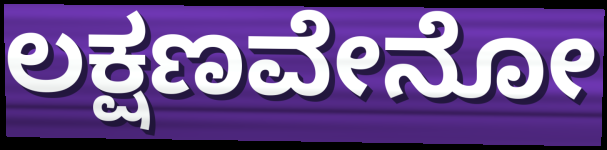
ಲಕ್ಷಣವೇನೋ